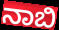
ನಾಬಿ